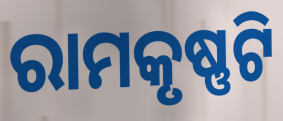
ରାମକୃଷ୍ଣଟି